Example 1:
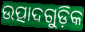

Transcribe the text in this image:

ଉତ୍ପାଦଗୁଡ଼ିକ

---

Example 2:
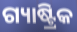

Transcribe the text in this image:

ଗ୍ୟାଷ୍ଟ୍ରିକ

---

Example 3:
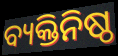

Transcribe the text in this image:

ବ୍ୟକ୍ତିନିଷ୍ଠ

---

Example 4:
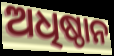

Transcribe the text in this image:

ଅଧିଷ୍ଠାନ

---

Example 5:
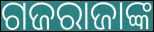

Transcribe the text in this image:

ଗଜରାଜାଙ୍କ